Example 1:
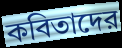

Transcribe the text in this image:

কবিতাদের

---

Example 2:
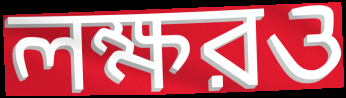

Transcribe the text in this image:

লক্ষরও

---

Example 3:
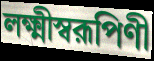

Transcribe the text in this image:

লক্ষ্মীস্বরূপিণী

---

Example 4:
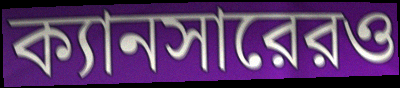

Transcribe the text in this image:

ক্যানসারেরও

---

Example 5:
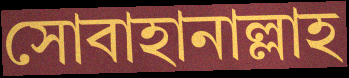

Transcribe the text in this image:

সোবাহানাল্লাহ